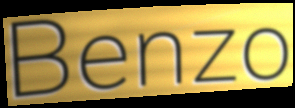
Benzo